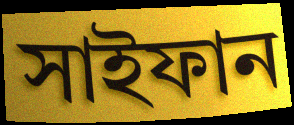
সাইফান